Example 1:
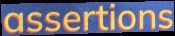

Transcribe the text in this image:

assertions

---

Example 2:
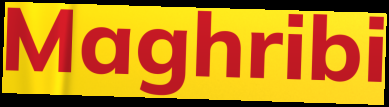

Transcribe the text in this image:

Maghribi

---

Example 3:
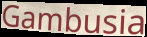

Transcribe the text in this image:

Gambusia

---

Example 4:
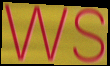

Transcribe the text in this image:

WS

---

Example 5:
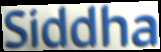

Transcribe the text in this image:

Siddha